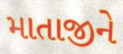
માતાજીને